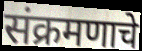
संक्रमणाचे